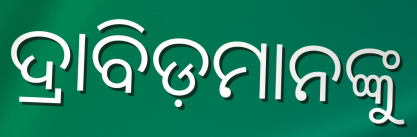
ଦ୍ରାବିଡ଼ମାନଙ୍କୁ